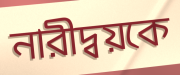
নারীদ্বয়কে